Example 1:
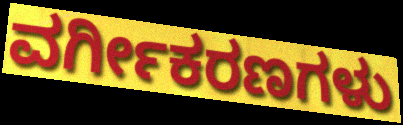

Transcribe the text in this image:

ವರ್ಗೀಕರಣಗಳು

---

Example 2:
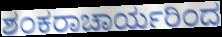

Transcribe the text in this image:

ಶಂಕರಾಚಾರ್ಯರಿಂದ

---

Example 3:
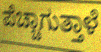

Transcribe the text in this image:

ಪೆಚ್ಚಾಗುತ್ತಾಳೆ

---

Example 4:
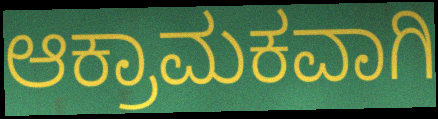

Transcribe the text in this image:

ಆಕ್ರಾಮಕವಾಗಿ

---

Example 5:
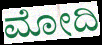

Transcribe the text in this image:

ಮೋದಿ